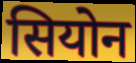
सियोन